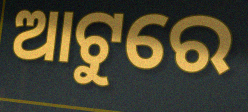
ଆଟୁରେ